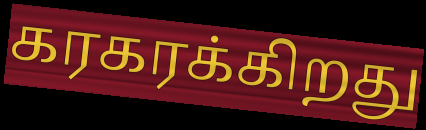
கரகரக்கிறது